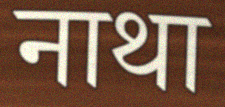
नाथा